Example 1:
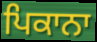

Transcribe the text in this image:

ਪਿਕਾਨਾ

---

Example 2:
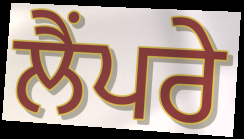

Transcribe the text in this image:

ਲੈਂਪਰੇ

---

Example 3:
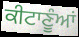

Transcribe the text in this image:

ਕੀਟਾਣੂੰਆਂ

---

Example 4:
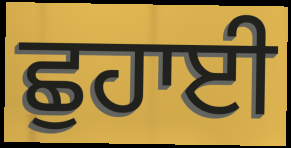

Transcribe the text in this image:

ਛੁਹਾਈ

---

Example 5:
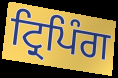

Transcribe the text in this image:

ਟ੍ਰਿਪਿੰਗ